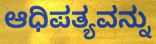
ಆಧಿಪತ್ಯವನ್ನು